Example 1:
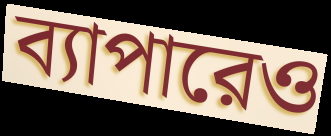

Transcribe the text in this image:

ব্যাপারেও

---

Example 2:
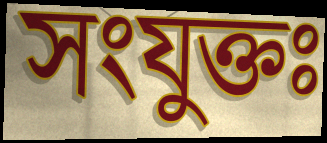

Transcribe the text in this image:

সংযুক্তঃ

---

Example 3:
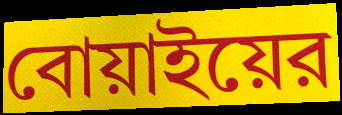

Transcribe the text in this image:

বোয়াইয়ের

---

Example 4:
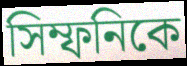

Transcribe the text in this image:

সিম্ফনিকে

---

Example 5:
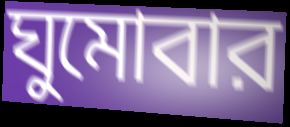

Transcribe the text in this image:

ঘুমোবার